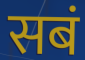
सबं